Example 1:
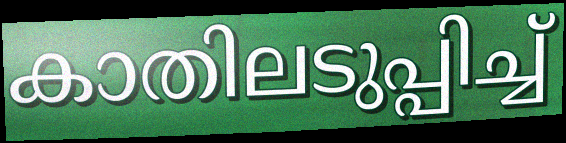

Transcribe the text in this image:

കാതിലടുപ്പിച്ച്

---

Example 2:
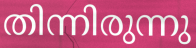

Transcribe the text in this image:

തിന്നിരുന്നു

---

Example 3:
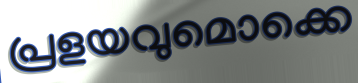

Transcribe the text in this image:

പ്രളയവുമൊക്കെ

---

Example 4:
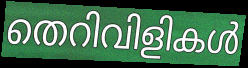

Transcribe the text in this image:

തെറിവിളികൾ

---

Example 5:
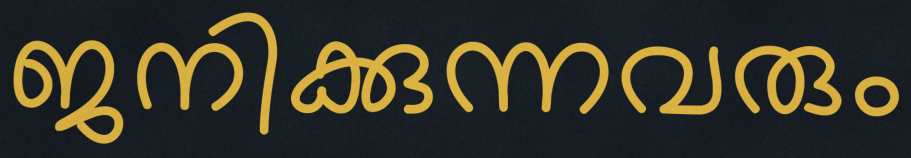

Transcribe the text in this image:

ജനിക്കുന്നവരും